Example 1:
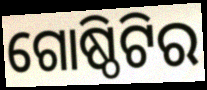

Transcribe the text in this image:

ଗୋଷ୍ଠିଟିର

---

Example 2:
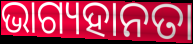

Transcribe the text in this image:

ଭାଗ୍ୟହାନତା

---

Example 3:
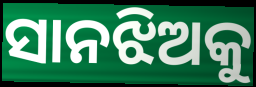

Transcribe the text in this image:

ସାନଝିଅକୁ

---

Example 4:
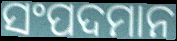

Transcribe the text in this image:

ସଂପଦମାନ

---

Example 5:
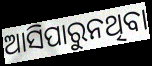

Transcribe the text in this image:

ଆସିପାରୁନଥିବା